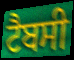
ਟੈਬਸੀ